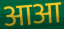
आआ